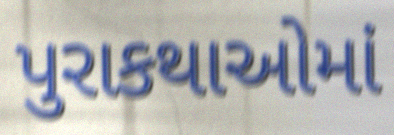
પુરાકથાઓમાં